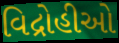
વિદ્રોહીઓ